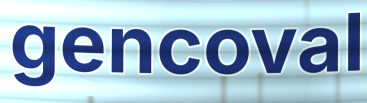
gencoval